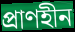
প্রাণহীন